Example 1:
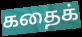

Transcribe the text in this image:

கதைக்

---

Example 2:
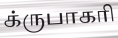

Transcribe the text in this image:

க்ருபாகரி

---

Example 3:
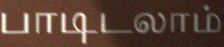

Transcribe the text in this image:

பாடிடலாம்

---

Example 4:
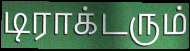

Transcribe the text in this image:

டிராக்டரும்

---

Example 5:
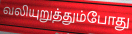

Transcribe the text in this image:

வலியுறுத்தும்போது